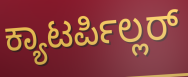
ಕ್ಯಾಟರ್ಪಿಲ್ಲರ್